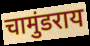
चामुंडराय